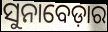
ସୁନାବେଡ଼ାର